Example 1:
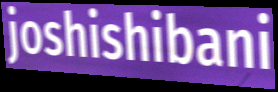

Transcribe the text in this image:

joshishibani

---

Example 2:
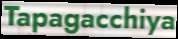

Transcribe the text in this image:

Tapagacchiya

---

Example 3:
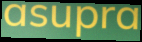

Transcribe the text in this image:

asupra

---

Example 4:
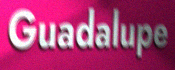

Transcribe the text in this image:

Guadalupe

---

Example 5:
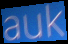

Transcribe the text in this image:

auk